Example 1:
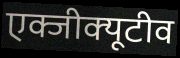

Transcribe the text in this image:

एक्जीक्यूटीव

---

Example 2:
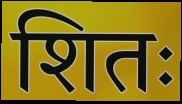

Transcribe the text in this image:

शितः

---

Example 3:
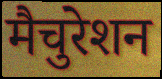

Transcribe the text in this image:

मैचुरेशन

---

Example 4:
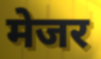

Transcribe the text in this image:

मेजर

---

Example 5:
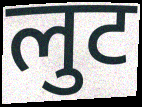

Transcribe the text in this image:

लुट